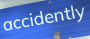
accidently